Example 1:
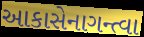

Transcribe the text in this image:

આકાસેનાગન્ત્વા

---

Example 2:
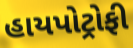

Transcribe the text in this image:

હાયપોટ્રોફી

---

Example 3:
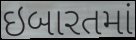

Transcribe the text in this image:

ઇબારતમાં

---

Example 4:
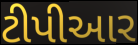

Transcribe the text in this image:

ટીપીઆર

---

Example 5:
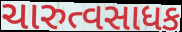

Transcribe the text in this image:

ચારુત્વસાધક